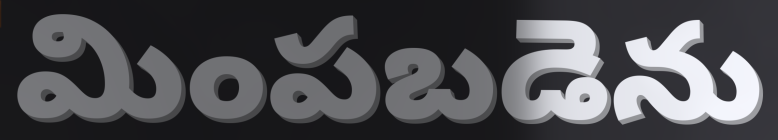
మింపబడెను